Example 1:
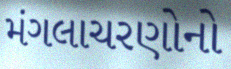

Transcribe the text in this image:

મંગલાચરણોનો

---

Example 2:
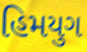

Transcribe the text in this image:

હિમયુગ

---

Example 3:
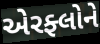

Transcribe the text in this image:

એરફ્લોને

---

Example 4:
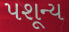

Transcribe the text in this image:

પશૂન્ય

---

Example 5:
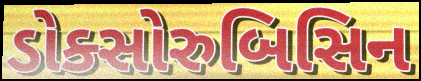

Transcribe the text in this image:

ડોક્સોરુબિસિન